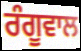
ਰੰਗੂਵਾਲ